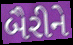
બૈરીને